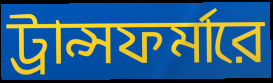
ট্রান্সফর্মারে